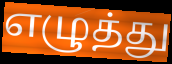
எழுத்து